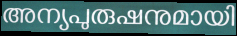
അന്യപുരുഷനുമായി